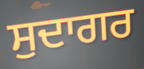
ਸੁਦਾਗਰ